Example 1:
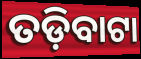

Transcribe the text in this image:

ତଡ଼ିବାଟା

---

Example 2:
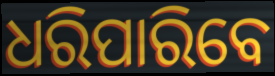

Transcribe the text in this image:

ଧରିପାରିବେ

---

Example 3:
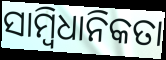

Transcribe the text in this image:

ସାମ୍ବିଧାନିକତା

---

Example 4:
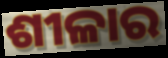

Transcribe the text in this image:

ଶୀଳାର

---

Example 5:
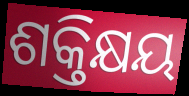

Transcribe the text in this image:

ଶକ୍ତିକ୍ଷୟ